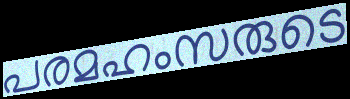
പരമഹംസരുടെ